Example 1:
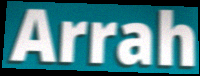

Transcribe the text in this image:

Arrah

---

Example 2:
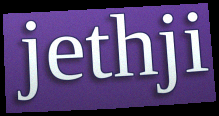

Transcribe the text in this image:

jethji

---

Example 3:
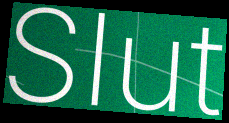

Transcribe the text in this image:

Slut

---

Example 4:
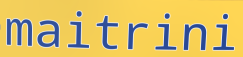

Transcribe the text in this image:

maitrini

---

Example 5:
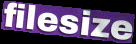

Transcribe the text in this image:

filesize